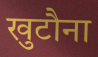
खुटौना